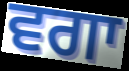
ਵਗਾ